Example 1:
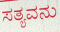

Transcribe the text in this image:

ಸತ್ಯವನು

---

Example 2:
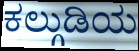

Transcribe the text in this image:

ಕಲ್ಗುಡಿಯ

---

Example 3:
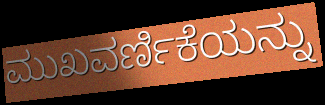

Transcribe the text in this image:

ಮುಖವರ್ಣಿಕೆಯನ್ನು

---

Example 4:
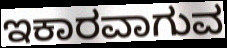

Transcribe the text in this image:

ಇಕಾರವಾಗುವ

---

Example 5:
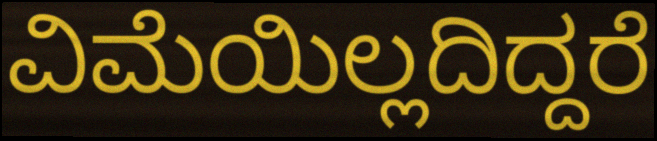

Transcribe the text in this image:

ವಿಮೆಯಿಲ್ಲದಿದ್ದರೆ